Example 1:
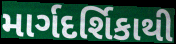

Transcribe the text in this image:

માર્ગદર્શિકાથી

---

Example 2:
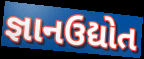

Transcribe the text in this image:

જ્ઞાનઉદ્યોત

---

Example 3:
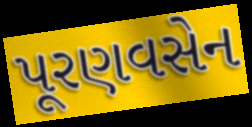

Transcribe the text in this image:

પૂરણવસેન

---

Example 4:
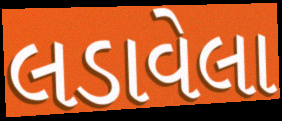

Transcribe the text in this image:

લડાવેલા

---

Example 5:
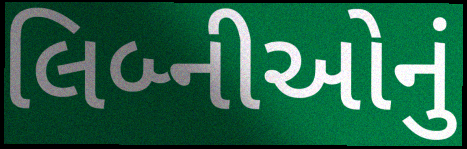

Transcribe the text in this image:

લિબ્નીઓનું